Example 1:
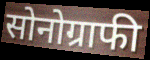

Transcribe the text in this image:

सोनोग्राफी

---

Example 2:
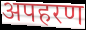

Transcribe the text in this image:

अपहरण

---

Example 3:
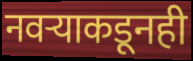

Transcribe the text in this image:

नवऱ्याकडूनही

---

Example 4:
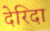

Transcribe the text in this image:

देरिदा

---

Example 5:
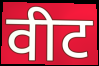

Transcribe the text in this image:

वीट